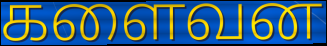
களைவன